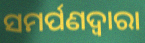
ସମର୍ପଣଦ୍ୱାରା